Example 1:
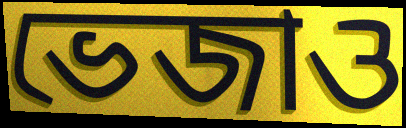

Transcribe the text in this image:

ভেজাও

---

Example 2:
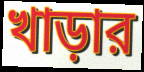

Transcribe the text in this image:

খাড়ার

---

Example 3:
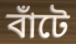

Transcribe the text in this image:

বাঁটে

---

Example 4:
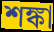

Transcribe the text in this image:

শঙ্কা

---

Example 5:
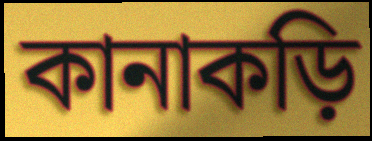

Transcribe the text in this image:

কানাকড়ি